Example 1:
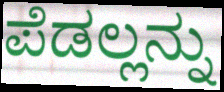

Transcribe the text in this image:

ಪೆಡಲ್ಲನ್ನು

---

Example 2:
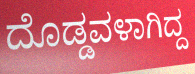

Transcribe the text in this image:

ದೊಡ್ಡವಳಾಗಿದ್ದ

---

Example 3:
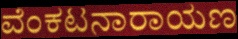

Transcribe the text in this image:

ವೆಂಕಟನಾರಾಯಣ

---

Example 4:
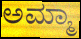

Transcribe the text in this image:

ಅಮ್ಮಾ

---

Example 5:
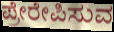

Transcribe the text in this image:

ಪ್ರೇರೇಪಿಸುವ